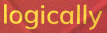
logically